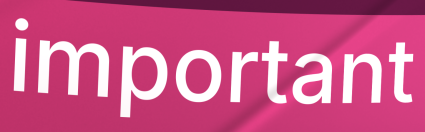
important